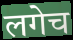
लगेच